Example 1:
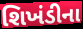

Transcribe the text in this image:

શિખંડીના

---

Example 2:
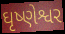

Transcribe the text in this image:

ઘૃષ્ણેશ્વર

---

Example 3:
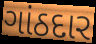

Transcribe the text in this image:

ગાંઠદાર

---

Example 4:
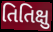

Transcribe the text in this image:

તિતિક્ષુ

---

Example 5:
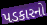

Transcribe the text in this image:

પડકારનો